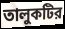
তালুকটির